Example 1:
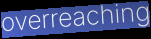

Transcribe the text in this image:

overreaching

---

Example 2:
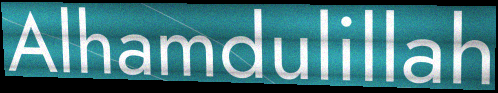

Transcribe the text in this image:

Alhamdulillah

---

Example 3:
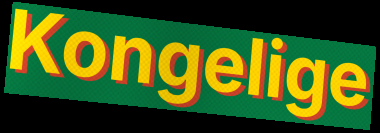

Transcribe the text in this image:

Kongelige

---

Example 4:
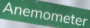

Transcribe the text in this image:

Anemometer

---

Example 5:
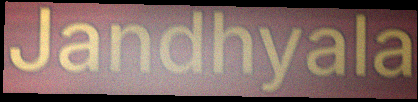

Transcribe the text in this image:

Jandhyala